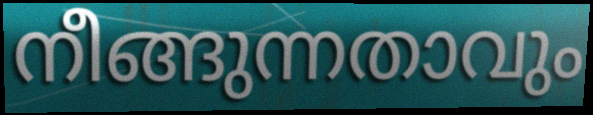
നീങ്ങുന്നതാവും